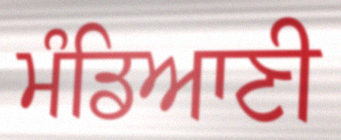
ਮੰਡਿਆਣੀ